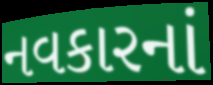
નવકારનાં